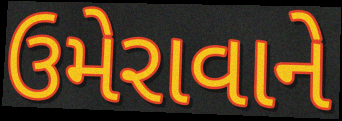
ઉમેરાવાને